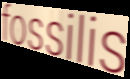
fossilis